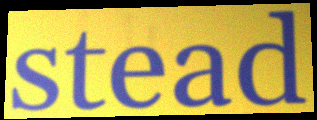
stead